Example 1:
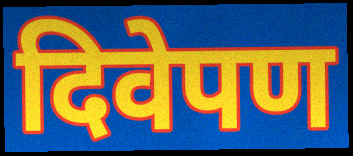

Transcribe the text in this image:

दिवेपण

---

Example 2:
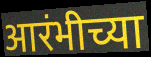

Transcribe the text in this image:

आरंभीच्या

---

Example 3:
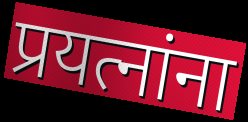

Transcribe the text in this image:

प्रयत्नांना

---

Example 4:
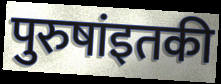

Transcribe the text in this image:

पुरुषांइतकी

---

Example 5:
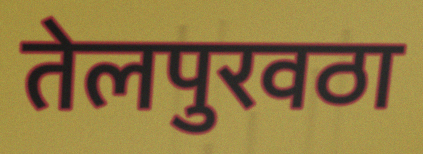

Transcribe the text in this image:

तेलपुरवठा